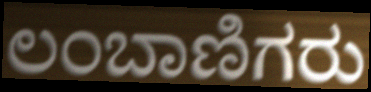
ಲಂಬಾಣಿಗರು